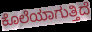
ಕೊಲೆಯಾಗುತ್ತಿದೆ